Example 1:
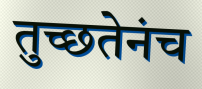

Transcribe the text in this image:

तुच्छतेनंच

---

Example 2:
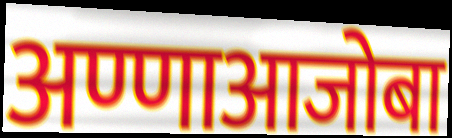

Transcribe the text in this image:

अण्णाआजोबा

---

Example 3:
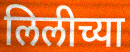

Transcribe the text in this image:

लिलीच्या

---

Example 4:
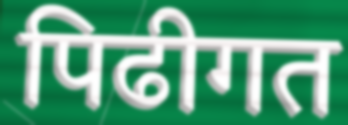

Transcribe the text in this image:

पिढीगत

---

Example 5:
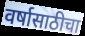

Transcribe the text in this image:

वर्षासाठीचा